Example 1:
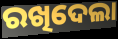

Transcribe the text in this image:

ରଖିଦେଲା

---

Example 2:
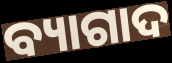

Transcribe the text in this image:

ବ୍ୟାଗାଦ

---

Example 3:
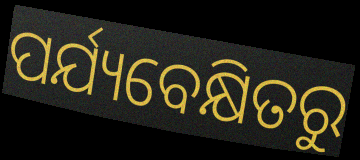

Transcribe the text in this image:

ପର୍ଯ୍ୟବେକ୍ଷିତରୁ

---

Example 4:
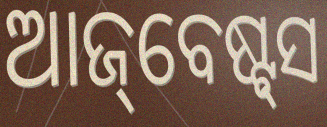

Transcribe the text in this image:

ଆଜ୍‌ବେଷ୍ଟ୍‌ସ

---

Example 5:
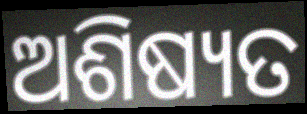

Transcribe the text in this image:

ଅଶିଷ୍ଯତ